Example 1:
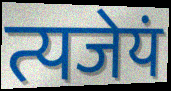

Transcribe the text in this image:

त्यजेयं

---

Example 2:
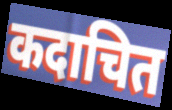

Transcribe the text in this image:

कदाचित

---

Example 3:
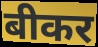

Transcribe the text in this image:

बीकर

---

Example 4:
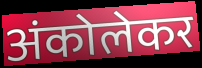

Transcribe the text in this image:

अंकोलेकर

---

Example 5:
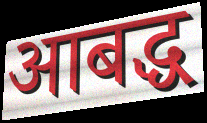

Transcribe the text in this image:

आबद्ध